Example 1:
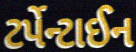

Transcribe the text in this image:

ટર્પેન્ટાઈન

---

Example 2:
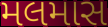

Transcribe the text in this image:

મલમાસ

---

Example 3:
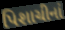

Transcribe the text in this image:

પિશાચીનાં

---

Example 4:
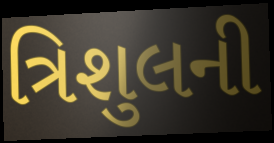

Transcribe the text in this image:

ત્રિશુલની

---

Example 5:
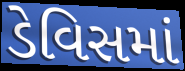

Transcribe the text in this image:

ડેવિસમાં